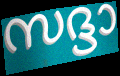
സദ്ദാ